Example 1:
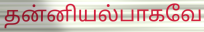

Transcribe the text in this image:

தன்னியல்பாகவே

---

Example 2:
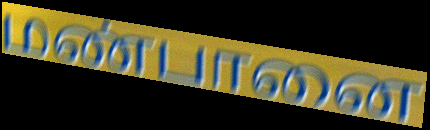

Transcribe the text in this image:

மண்பானை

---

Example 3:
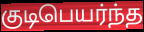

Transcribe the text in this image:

குடிபெயர்ந்த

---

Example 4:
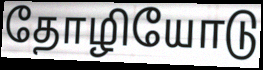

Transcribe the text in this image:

தோழியோடு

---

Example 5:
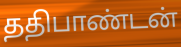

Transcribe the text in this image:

ததிபாண்டன்